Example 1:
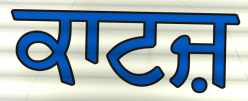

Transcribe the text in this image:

ਕਾਟਜ਼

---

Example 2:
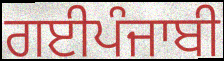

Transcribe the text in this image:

ਗਈਪੰਜਾਬੀ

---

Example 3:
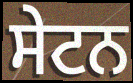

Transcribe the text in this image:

ਸੇਟਨ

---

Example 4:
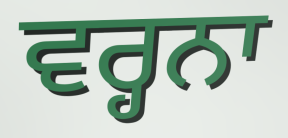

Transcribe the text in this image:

ਵਰ੍ਹਨਾ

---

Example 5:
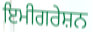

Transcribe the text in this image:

ਇਮੀਗਰੇਸ਼ਨ